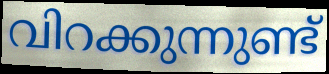
വിറക്കുന്നുണ്ട്